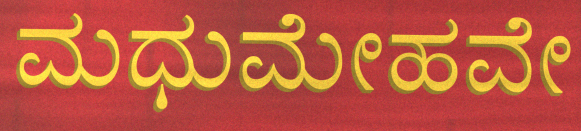
ಮಧುಮೇಹವೇ